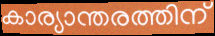
കാര്യാന്തരത്തിന്